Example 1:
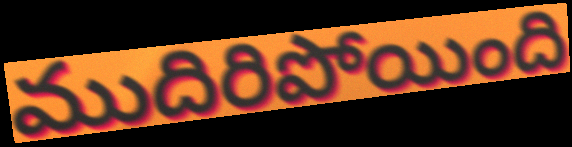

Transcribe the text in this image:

ముదిరిపోయింది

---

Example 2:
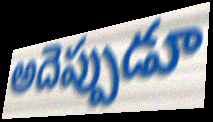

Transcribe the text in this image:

అదెప్పుడూ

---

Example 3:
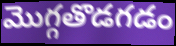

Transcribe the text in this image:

మొగ్గతొడగడం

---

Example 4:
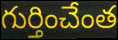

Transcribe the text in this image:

గుర్తించేంత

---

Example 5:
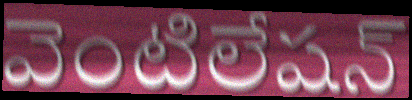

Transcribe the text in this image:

వెంటిలేషన్